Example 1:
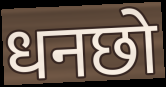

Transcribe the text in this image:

धनछो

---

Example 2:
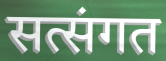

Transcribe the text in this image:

सत्संगत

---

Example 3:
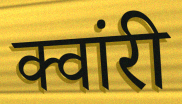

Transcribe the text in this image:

क्वांरी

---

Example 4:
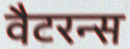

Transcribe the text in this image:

वैटरन्स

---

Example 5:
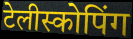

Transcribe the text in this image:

टेलीस्कोपिंग